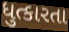
ધુત્કારતા